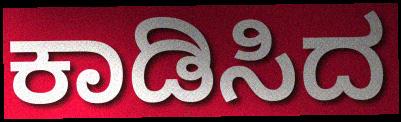
ಕಾಡಿಸಿದ